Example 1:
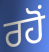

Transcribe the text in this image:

ਰਹੋਂ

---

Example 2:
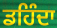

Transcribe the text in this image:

ਡਹਿੰਦਾ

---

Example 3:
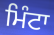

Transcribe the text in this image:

ਮਿੰਟਾ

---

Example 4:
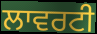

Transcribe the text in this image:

ਲਾਵਰਟੀ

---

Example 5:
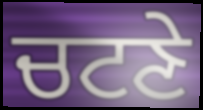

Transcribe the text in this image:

ਚਟਣੇ